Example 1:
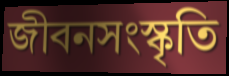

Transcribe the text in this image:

জীবনসংস্কৃতি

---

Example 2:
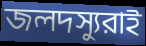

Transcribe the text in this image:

জলদস্যুরাই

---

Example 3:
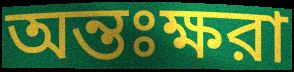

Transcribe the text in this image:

অন্তঃক্ষরা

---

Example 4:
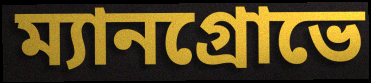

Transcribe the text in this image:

ম্যানগ্রোভে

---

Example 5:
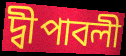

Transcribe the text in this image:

দ্বীপাবলী